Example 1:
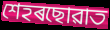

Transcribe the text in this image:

শেহৰছোৱাত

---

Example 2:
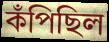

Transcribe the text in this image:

কঁপিছিল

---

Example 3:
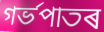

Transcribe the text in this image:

গৰ্ভপাতৰ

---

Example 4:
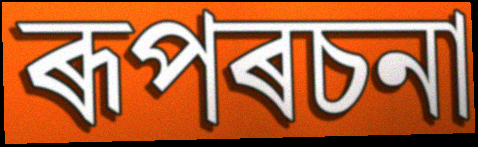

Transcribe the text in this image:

ৰূপৰচনা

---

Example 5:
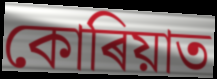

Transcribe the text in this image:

কোৰিয়াত